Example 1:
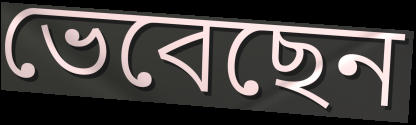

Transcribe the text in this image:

ভেবেছেন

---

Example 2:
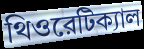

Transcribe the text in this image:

থিওরেটিক্যাল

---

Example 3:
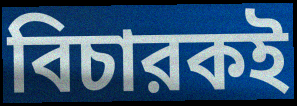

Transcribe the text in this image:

বিচারকই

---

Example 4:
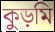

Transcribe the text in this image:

কুড়মি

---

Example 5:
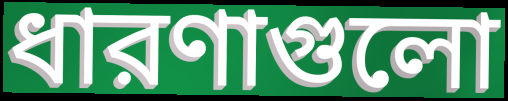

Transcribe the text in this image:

ধারণাগুলো